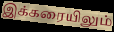
இக்கரையிலும்